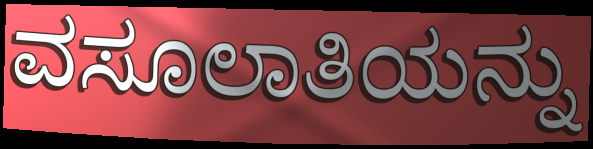
ವಸೂಲಾತಿಯನ್ನು